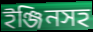
ইঞ্জিনসহ